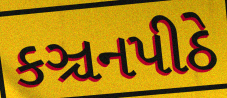
કઞ્ચનપીઠે